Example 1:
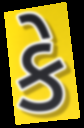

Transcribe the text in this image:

કે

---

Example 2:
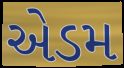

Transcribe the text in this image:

એડમ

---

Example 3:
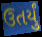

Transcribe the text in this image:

ઉતર્યું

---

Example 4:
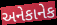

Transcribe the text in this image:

અનેકાનેક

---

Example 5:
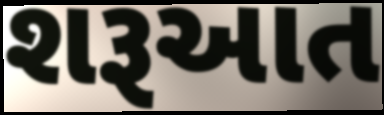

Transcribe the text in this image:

શરૂઆત